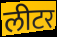
लीटर